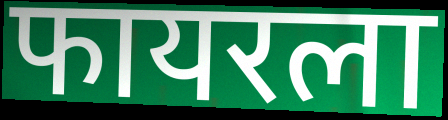
फायरला